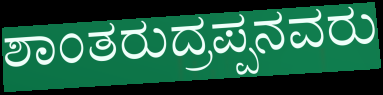
ಶಾಂತರುದ್ರಪ್ಪನವರು